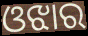
ଓଝାର